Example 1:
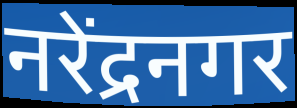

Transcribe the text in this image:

नरेंद्रनगर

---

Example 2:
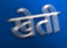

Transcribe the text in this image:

खेती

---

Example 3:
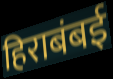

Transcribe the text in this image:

हिराबंबई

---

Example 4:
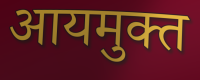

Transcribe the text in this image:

आयमुक्त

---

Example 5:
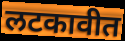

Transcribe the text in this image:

लटकावीत